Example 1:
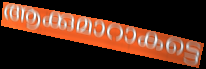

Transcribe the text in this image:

ആക്കുമാറാകട്ടെ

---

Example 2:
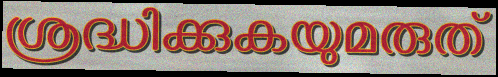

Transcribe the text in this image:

ശ്രദ്ധിക്കുകയുമരുത്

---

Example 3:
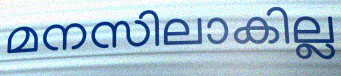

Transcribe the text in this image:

മനസിലാകില്ല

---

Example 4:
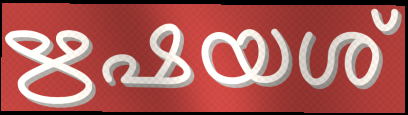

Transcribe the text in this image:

ഋഷയശ്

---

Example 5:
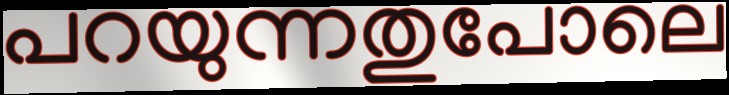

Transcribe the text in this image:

പറയുന്നതുപോലെ